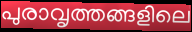
പുരാവൃത്തങ്ങളിലെ